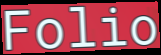
Folio